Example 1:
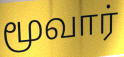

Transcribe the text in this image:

மூவார்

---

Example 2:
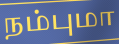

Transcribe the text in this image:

நம்புமா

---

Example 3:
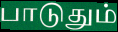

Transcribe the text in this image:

பாடுதும்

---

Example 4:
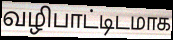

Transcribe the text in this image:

வழிபாட்டிடமாக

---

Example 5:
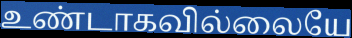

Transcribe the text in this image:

உண்டாகவில்லையே